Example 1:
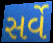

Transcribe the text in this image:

સર્વે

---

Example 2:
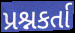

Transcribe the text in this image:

પ્રશ્નકર્તા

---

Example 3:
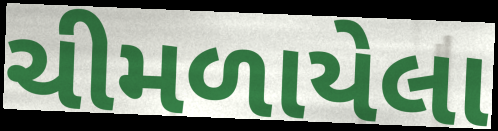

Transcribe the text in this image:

ચીમળાયેલા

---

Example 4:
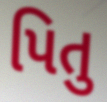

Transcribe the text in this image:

પિતુ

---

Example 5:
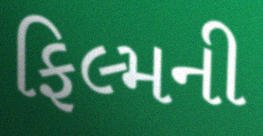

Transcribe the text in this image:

ફિલ્મની